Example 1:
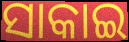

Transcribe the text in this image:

ସାକାଇ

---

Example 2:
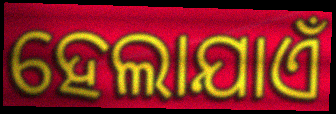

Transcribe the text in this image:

ହେଲାଯାଏଁ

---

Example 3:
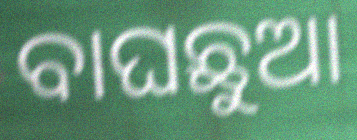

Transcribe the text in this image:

ବାଘଛୁଆ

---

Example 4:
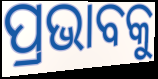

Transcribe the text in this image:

ପ୍ରଭାବକୁ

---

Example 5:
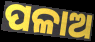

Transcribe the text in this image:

ପଳାଅ